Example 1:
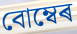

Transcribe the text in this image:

বোম্বেৰ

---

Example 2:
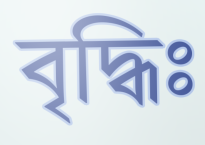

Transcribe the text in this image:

বৃদ্ধিঃ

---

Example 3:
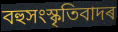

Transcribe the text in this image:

বহুসংস্কৃতিবাদৰ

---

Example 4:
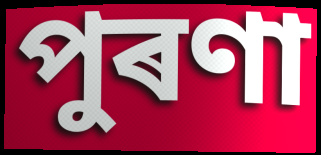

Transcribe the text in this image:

পুৰণা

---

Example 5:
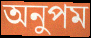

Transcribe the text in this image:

অনুপম